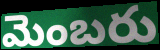
మెంబరు